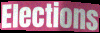
Elections